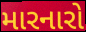
મારનારો